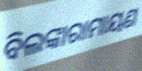
ବିଲଙ୍କାରାମାୟଣ